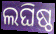
ଲଘିଷ୍ଠ